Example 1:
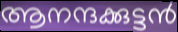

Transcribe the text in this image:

ആനന്ദക്കുട്ടൻ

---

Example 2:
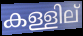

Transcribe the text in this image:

കള്ളില്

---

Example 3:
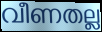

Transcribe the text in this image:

വീണതല്ല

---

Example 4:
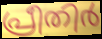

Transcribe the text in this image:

പ്രീതിർ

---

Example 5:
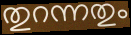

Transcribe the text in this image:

തുറന്നതും